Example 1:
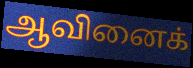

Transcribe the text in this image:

ஆவினைக்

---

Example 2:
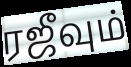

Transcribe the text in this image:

ரஜீவும்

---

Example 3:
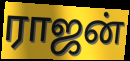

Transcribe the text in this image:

ராஜன்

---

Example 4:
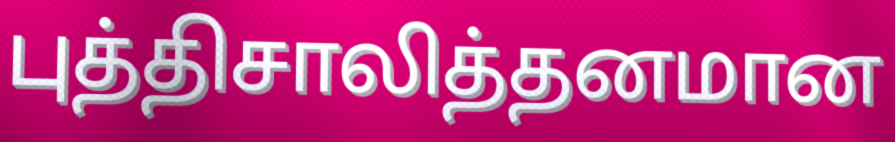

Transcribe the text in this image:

புத்திசாலித்தனமான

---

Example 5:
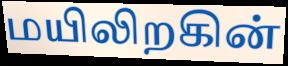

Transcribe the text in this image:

மயிலிறகின்